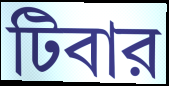
টিবার